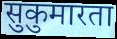
सुकुमारता